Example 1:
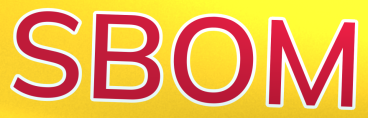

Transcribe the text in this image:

SBOM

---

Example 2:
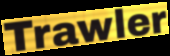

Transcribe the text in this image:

Trawler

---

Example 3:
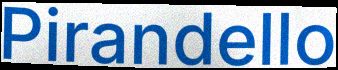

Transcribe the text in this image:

Pirandello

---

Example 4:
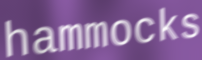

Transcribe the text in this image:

hammocks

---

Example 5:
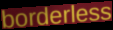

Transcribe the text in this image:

borderless